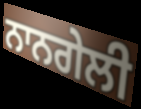
ਨਾਨਗੇਲੀ